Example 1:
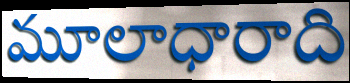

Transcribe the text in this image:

మూలాధారాది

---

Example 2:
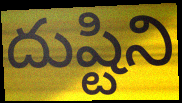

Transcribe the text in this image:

దుష్టిని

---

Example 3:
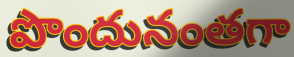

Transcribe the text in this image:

పొందునంతగా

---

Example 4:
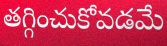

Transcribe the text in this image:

తగ్గించుకోవడమే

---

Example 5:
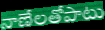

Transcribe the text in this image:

నాణేలతోపాటు